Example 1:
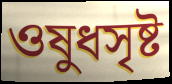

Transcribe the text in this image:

ওষুধসৃষ্ট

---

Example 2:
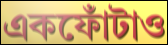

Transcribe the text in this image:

একফোঁটাও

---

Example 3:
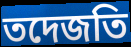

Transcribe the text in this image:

তদেজতি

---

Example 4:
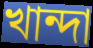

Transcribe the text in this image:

খান্দা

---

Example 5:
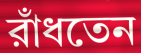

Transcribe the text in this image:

রাঁধতেন